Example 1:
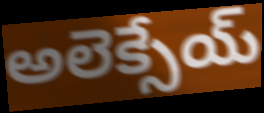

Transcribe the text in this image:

అలెక్సేయ్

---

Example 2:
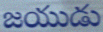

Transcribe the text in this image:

జయుడు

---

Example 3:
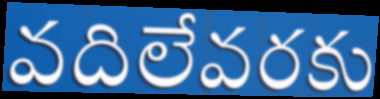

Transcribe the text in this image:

వదిలేవరకు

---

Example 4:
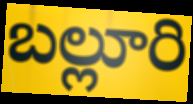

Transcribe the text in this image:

బల్లూరి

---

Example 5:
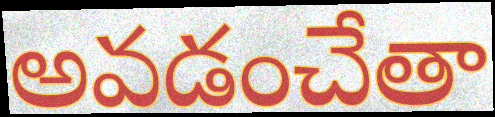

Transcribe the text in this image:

అవడంచేతా